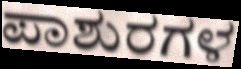
ಪಾಶುರಗಳ